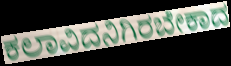
ಕಲಾವಿದನಿಗಿರಬೇಕಾದ